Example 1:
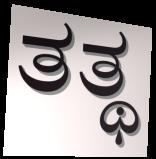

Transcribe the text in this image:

ತತ್ಥ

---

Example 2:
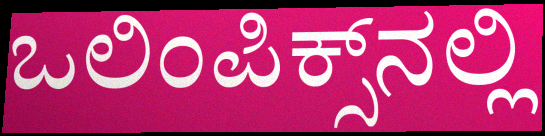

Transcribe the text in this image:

ಒಲಿಂಪಿಕ್ಸ್‌ನಲ್ಲಿ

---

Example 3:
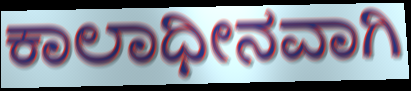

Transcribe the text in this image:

ಕಾಲಾಧೀನವಾಗಿ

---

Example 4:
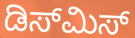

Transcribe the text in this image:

ಡಿಸ್‌ಮಿಸ್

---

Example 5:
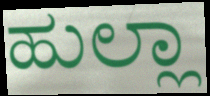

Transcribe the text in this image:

ಹುಲ್ಲಾ